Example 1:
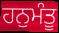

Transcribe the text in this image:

ਹਨੁਮੰਤੂ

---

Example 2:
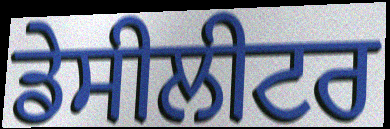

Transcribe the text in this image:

ਡੇਸੀਲੀਟਰ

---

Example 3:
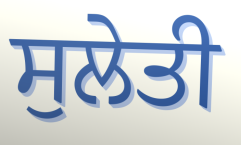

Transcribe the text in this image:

ਸੁਲੇਤੀ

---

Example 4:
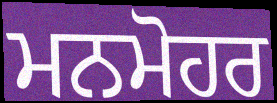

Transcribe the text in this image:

ਮਨਮੋਹਰ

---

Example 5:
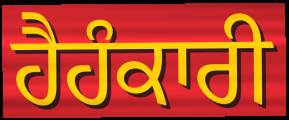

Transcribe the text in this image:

ਹੈਹੰਕਾਰੀ